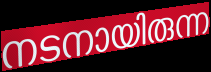
നടനായിരുന്ന